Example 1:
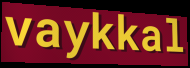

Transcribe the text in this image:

vaykkal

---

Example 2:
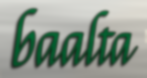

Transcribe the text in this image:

baalta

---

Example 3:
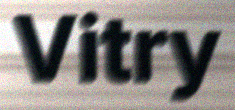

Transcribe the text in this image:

Vitry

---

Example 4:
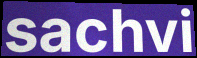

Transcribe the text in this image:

sachvi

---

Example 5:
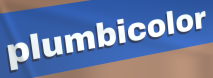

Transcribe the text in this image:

plumbicolor